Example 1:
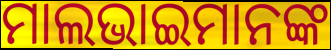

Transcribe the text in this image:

ମାଲଭାଇମାନଙ୍କ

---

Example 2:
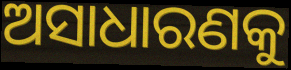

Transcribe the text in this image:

ଅସାଧାରଣକୁ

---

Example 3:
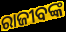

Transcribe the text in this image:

ରାଜୀବଙ୍କ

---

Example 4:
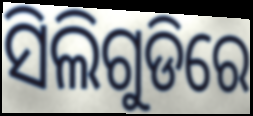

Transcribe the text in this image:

ସିଲିଗୁଡିରେ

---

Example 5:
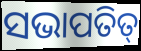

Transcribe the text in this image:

ସଭାପତିତ୍